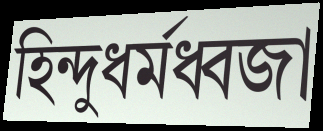
হিন্দুধর্মধ্বজা